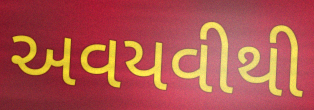
અવયવીથી